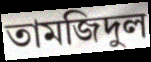
তামজিদুল